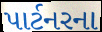
પાર્ટનરના